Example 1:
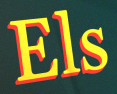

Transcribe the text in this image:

Els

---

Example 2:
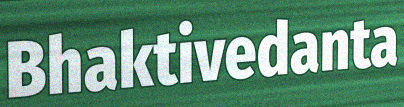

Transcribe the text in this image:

Bhaktivedanta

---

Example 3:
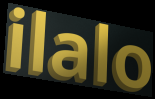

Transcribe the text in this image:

ilalo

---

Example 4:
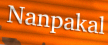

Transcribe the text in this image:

Nanpakal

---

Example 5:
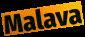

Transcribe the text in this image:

Malava